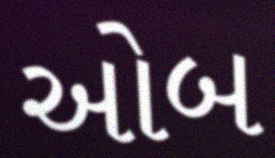
ઓબ